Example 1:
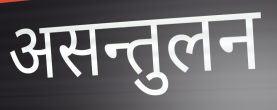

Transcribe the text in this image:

असन्तुलन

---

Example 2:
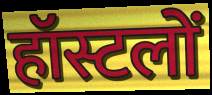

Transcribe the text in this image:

हॉस्टलों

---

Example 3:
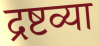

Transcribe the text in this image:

द्रष्टव्या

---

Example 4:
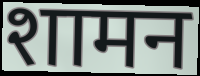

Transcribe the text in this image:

शामन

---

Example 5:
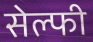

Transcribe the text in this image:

सेल्फी